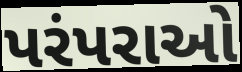
પરંપરાઓ